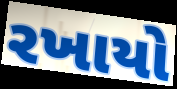
રખાયો